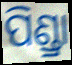
ପିଣ୍ଡ୍ରା